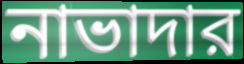
নাভাদার